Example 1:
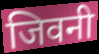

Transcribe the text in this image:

जिवनी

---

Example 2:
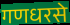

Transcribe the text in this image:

गणधरसे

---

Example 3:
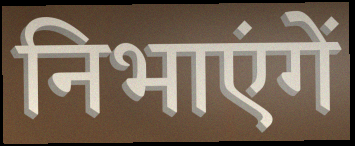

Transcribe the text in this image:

निभाएंगें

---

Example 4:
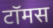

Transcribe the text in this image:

टॉमस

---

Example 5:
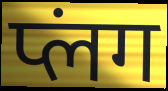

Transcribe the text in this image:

प्लंग